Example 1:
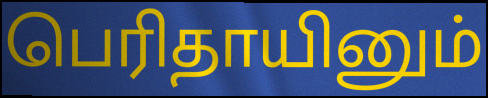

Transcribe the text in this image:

பெரிதாயினும்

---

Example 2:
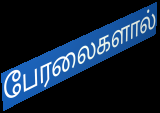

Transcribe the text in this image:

பேரலைகளால்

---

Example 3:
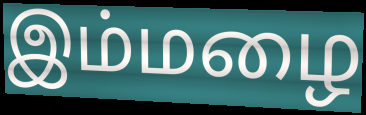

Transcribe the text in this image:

இம்மழை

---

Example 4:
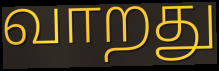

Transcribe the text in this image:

வாறது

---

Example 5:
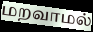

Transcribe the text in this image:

மறவாமல்